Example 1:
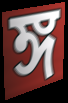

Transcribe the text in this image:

ঙ্গ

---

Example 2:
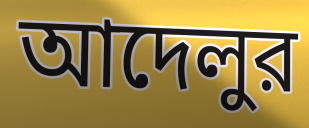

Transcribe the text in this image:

আদেলুর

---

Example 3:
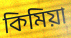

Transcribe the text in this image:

কিমিয়া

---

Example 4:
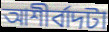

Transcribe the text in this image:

আশীর্বাদটা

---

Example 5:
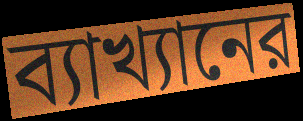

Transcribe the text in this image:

ব্যাখ্যানের